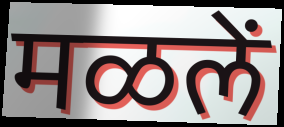
मळलें